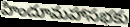
హిందూమహాసభకు